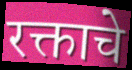
रक्ताचे